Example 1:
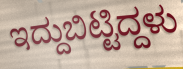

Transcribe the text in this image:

ಇದ್ದುಬಿಟ್ಟಿದ್ದಳು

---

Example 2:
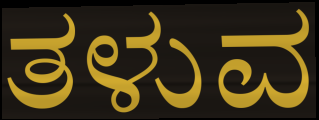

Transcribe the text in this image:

ತಳುವ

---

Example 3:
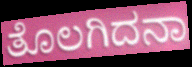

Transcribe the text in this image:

ತೊಲಗಿದನಾ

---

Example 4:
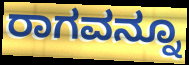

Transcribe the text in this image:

ರಾಗವನ್ನೂ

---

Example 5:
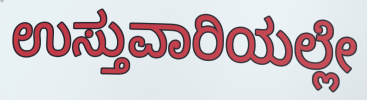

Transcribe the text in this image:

ಉಸ್ತುವಾರಿಯಲ್ಲೇ